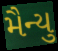
મૈન્યુ